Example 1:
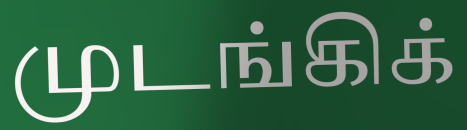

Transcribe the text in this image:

முடங்கிக்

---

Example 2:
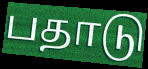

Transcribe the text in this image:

பதாடு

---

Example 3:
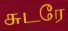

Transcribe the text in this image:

சுடரே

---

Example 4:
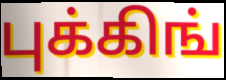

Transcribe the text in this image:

புக்கிங்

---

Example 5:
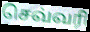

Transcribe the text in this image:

செவ்வரி